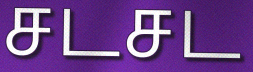
சடசட